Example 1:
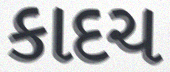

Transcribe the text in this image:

કાદચ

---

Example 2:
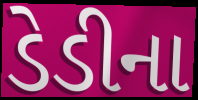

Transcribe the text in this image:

ડેડીના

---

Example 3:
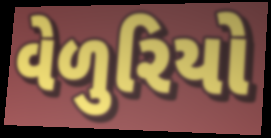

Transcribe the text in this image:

વેળુરિયો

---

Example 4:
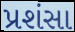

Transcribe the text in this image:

પ્રશંસા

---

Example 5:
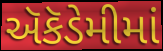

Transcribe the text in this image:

ઍકૅડેમીમાં